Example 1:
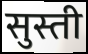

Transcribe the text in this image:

सुस्ती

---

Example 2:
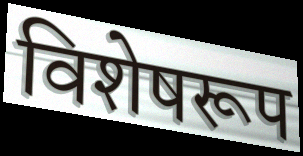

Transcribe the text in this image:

विशेषरूप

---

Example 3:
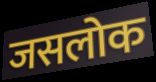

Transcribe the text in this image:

जसलोक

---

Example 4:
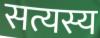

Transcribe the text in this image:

सत्यस्य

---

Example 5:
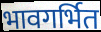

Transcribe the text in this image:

भावगर्भित